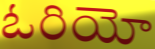
ఓరియో